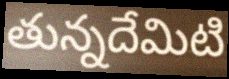
తున్నదేమిటి